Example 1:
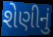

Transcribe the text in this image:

શેણીનું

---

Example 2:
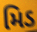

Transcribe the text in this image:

મિડ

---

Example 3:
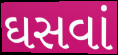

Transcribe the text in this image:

ઘસવાં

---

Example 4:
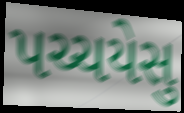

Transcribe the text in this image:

પચ્ચયેસુ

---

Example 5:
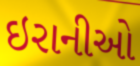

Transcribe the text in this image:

ઇરાનીઓ